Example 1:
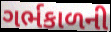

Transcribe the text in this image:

ગર્ભકાળની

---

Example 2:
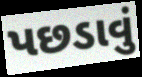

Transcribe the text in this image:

પછડાવું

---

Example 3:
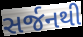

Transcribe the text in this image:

સર્જનથી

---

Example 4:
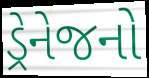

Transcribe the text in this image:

ડ્રેનેજનો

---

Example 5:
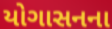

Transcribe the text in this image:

યોગાસનના